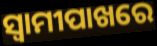
ସ୍ୱାମୀପାଖରେ